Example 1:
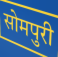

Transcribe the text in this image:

सोमपुरी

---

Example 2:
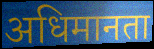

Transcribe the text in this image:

अधिमानता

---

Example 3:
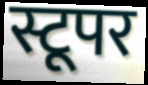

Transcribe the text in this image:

स्टूपर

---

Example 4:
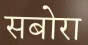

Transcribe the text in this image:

सबोरा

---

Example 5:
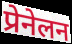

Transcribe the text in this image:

प्रेनेलन